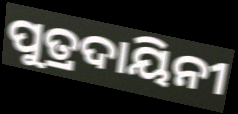
ପୁତ୍ରଦାୟିନୀ